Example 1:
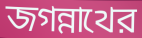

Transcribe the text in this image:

জগন্নাথের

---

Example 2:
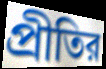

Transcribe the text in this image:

প্রীতির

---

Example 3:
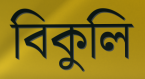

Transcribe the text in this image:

বিকুলি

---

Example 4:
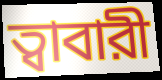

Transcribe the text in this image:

ত্বাবারী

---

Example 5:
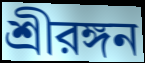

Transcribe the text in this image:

শ্রীরঙ্গন